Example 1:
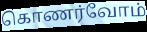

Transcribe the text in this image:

கொணர்வோம்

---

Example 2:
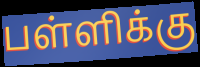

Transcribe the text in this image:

பள்ளிக்கு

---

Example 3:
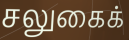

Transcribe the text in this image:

சலுகைக்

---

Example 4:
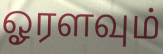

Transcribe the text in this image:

ஓரளவும்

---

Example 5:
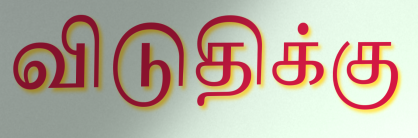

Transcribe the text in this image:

விடுதிக்கு